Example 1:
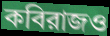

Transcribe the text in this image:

কবিরাজও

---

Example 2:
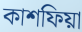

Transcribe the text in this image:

কাশফিয়া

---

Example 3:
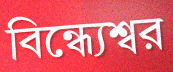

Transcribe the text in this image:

বিন্ধ্যেশ্বর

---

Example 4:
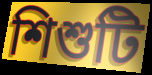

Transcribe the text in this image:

শিশুটি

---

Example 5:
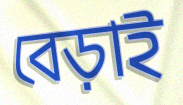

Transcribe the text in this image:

বেড়াই